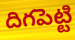
దిగపెట్టి